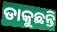
ଡାକୁଛନ୍ତି